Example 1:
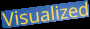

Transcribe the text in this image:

Visualized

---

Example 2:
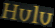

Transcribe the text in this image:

Hulu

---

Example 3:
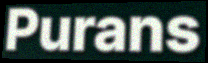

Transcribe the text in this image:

Purans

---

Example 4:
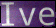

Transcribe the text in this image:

Ive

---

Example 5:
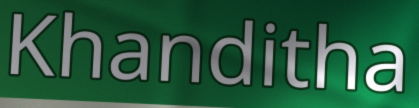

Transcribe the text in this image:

Khanditha